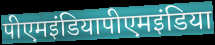
पीएमइंडियापीएमइंडिया